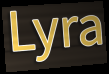
Lyra